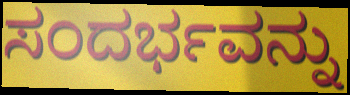
ಸಂದರ್ಭವನ್ನು